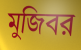
মুজিবর